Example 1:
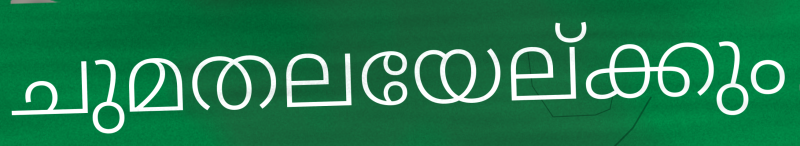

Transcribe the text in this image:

ചുമതലയേല്ക്കും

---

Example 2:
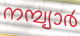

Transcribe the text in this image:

നമ്പ്യാർ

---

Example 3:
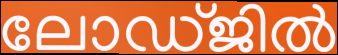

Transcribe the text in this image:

ലോഡ്ജിൽ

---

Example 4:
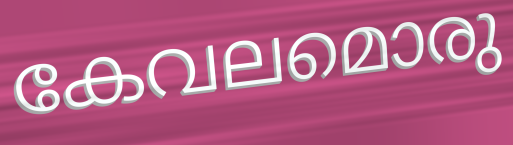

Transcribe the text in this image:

കേവലമൊരു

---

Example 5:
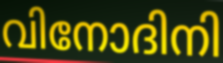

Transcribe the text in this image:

വിനോദിനി